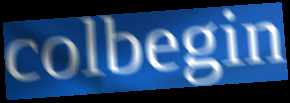
colbegin